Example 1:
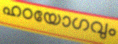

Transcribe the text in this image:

ഹഠയോഗവും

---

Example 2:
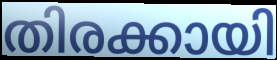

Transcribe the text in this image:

തിരക്കായി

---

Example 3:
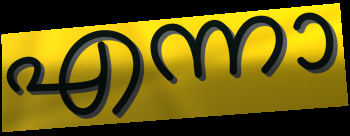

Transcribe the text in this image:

എന്നാ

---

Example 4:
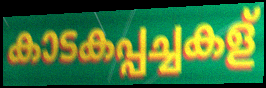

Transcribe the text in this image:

കാടകപ്പച്ചകള്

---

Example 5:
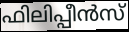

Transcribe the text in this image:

ഫിലിപ്പീൻസ്